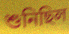
শুনিছিল